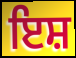
ਇਸ਼